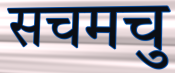
सचमचु